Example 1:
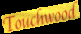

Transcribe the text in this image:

Touchwood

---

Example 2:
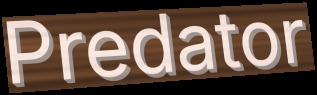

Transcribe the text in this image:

Predator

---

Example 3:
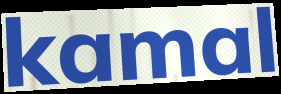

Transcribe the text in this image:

kamal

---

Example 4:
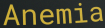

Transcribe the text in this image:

Anemia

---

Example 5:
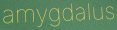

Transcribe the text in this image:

amygdalus